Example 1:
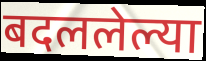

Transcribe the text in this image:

बदललेल्या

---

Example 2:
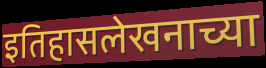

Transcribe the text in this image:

इतिहासलेखनाच्या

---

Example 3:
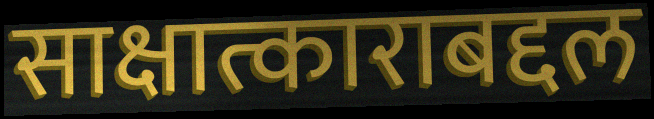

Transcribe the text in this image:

साक्षात्काराबद्दल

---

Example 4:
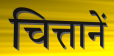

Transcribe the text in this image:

चित्तानें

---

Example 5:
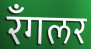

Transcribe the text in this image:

रॅंगलर